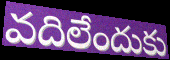
వదిలేందుకు